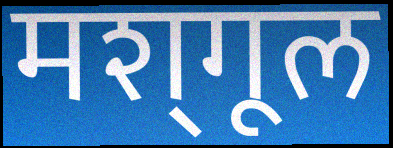
मश्गूल